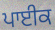
ਪਾਈਕ